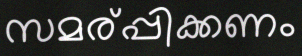
സമര്പ്പിക്കണം